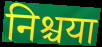
निश्चया